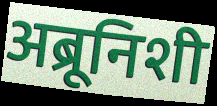
अब्रूनिशी